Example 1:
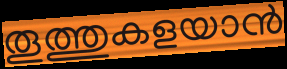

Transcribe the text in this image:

തൂത്തുകളയാൻ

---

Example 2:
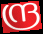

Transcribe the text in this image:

ന്ദ്ര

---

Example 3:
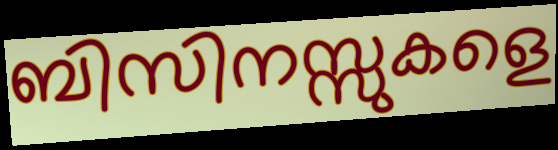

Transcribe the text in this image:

ബിസിനസ്സുകളെ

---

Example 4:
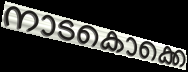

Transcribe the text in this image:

നാടകൊക്കെ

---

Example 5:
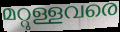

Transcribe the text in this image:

മറ്റുള്ളവരെ